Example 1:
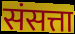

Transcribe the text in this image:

संसत्ता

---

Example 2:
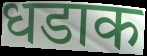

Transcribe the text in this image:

धडाक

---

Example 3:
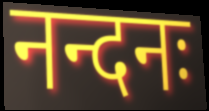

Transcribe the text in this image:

नन्दनः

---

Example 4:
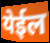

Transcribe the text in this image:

येईल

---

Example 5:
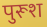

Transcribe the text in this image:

पुरूश